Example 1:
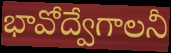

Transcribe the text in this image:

భావోద్వేగాలనీ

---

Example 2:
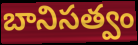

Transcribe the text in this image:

బానిసత్వం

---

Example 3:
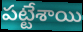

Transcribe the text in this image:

పట్టేశాయి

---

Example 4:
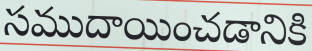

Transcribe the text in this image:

సముదాయించడానికి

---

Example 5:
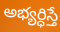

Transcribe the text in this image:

అభ్యర్ధిస్తే